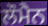
ਲੌਮੈਨ